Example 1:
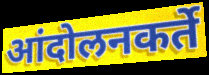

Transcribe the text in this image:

आंदोलनकर्ते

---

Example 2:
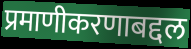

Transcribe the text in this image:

प्रमाणीकरणाबद्दल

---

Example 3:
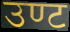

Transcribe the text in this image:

उण्ट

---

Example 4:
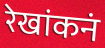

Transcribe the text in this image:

रेखांकनं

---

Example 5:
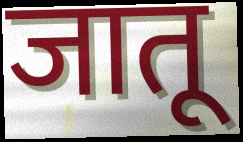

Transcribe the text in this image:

जातू